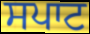
ਸਪਾਟ